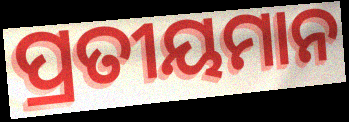
ପ୍ରତୀୟମାନ